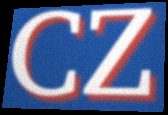
CZ